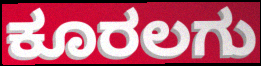
ಕೂರಲಗು